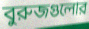
বুরুজগুলোর